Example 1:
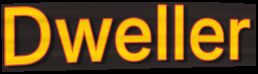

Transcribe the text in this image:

Dweller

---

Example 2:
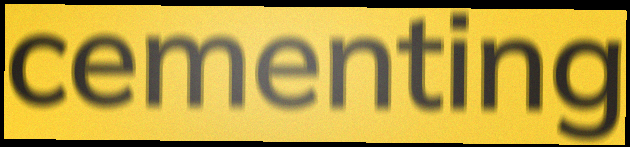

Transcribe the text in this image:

cementing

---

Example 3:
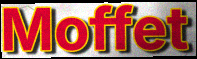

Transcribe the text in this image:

Moffet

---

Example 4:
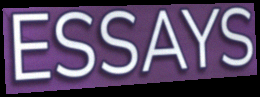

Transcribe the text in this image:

ESSAYS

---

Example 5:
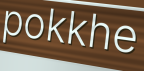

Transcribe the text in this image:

pokkhe